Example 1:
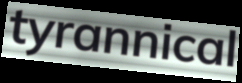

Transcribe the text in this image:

tyrannical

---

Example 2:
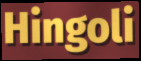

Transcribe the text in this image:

Hingoli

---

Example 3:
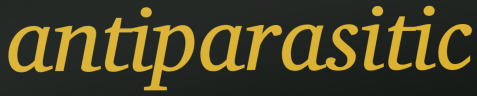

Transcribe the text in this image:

antiparasitic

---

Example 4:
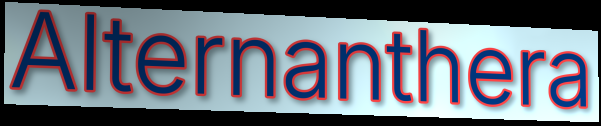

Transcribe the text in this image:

Alternanthera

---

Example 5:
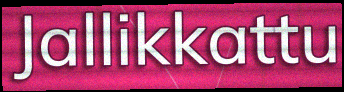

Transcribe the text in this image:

Jallikkattu